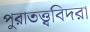
পুরাতত্ত্ববিদরা